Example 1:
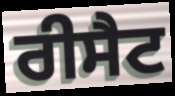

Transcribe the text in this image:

ਰੀਸੈਟ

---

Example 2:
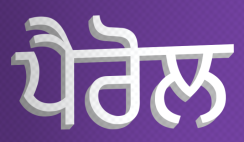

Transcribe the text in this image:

ਪੈਰੋਲ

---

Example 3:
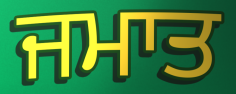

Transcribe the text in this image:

ਜਮਾਤ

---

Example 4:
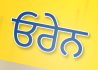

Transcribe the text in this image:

ਓਰੇਨ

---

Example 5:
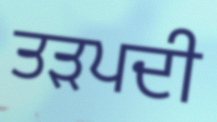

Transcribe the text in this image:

ਤੜਪਦੀ